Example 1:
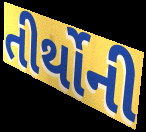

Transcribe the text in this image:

તીર્થોની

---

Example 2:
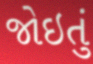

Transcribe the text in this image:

જોઇતું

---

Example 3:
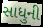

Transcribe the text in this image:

સાધુની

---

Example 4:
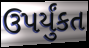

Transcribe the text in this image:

ઉપર્યુંકત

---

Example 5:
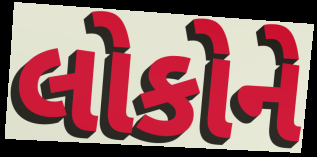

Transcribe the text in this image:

લોકોને